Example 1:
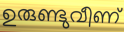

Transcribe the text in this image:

ഉരുണ്ടുവീണ്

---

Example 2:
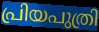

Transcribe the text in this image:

പ്രിയപുത്രി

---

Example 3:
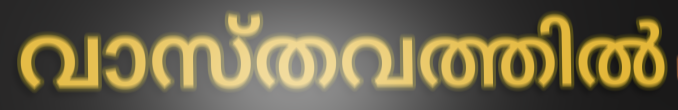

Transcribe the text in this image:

വാസ്തവത്തിൽ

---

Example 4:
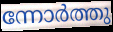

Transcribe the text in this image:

ന്നോർത്തു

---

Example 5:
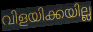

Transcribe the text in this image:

വിളയിക്കയില്ല